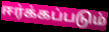
ஈர்க்கப்படும்